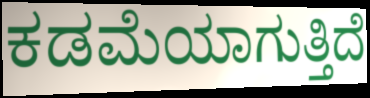
ಕಡಮೆಯಾಗುತ್ತಿದೆ